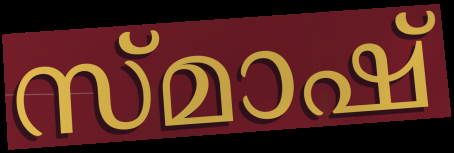
സ്മാഷ്